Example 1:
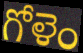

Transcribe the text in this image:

గోళెం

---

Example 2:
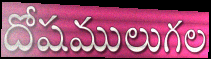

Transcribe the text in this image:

దోషములుగల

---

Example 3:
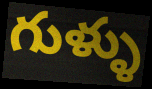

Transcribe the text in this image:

గుళ్ళు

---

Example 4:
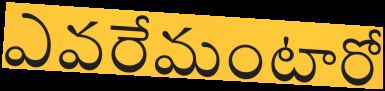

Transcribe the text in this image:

ఎవరేమంటారో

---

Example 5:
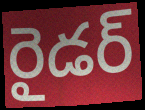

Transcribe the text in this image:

రైడర్